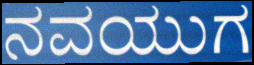
ನವಯುಗ